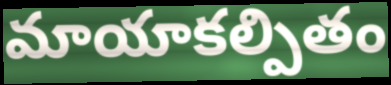
మాయాకల్పితం